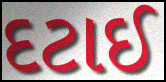
દટાઈ